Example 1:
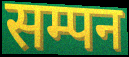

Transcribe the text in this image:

सम्पन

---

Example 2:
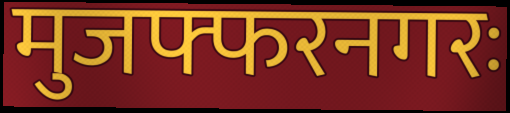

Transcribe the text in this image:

मुजफ्फरनगरः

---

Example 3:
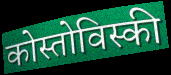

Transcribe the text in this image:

कोस्तोविस्की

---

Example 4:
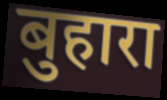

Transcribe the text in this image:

बुहारा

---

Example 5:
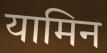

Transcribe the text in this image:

यामिन